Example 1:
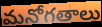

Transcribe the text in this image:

మనోగతాలు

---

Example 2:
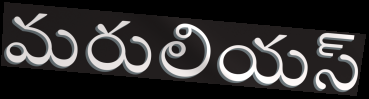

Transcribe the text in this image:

మరులియస్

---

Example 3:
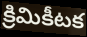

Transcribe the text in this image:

క్రిమికీటక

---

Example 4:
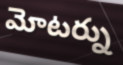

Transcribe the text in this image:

మోటర్ను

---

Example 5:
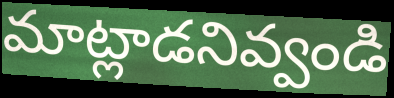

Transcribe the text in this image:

మాట్లాడనివ్వండి